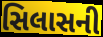
સિલાસની